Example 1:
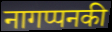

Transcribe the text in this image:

नागप्पनकी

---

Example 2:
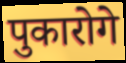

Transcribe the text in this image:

पुकारोगे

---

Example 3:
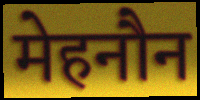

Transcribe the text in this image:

मेहनौन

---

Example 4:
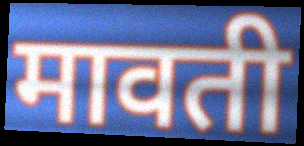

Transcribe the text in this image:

मावती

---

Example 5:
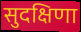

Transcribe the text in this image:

सुदक्षिणा